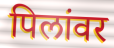
पिलांवर